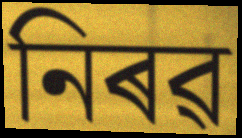
নিৰৱ